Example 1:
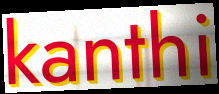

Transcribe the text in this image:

kanthi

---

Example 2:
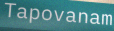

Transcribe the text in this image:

Tapovanam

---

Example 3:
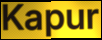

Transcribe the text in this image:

Kapur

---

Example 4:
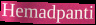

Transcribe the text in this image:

Hemadpanti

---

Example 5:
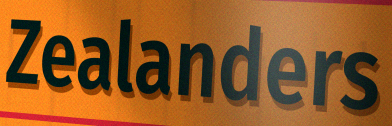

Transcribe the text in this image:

Zealanders